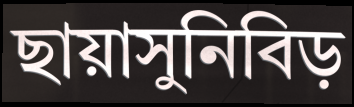
ছায়াসুনিবিড়